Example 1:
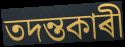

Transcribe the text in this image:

তদন্তকাৰী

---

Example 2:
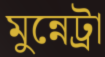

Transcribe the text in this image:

মুন্নেট্ৰা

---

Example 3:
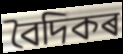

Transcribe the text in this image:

বৈদিকৰ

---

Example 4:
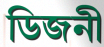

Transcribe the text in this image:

ডিজনী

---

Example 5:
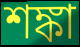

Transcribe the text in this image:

শঙ্কা